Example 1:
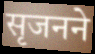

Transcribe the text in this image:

सृजनने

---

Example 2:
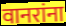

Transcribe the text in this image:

वानरांना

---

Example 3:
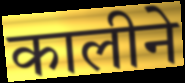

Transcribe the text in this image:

कालीने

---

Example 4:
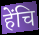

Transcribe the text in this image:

हेंचि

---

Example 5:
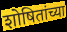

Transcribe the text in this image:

शोषितांच्या